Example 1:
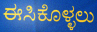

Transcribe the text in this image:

ಈಸಿಕೊಳ್ಳಲು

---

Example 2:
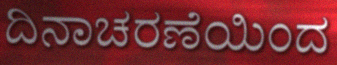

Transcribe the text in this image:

ದಿನಾಚರಣೆಯಿಂದ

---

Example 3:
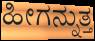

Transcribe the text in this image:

ಹೀಗನ್ನುತ್ತ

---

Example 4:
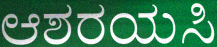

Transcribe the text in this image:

ಆಶರಯಸಿ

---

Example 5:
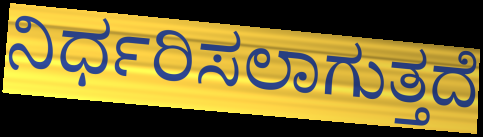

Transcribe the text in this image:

ನಿರ್ಧರಿಸಲಾಗುತ್ತದೆ